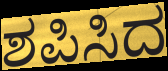
ಶಪಿಸಿದ